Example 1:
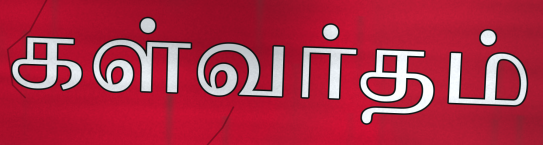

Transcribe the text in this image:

கள்வர்தம்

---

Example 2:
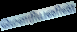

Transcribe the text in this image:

மௌரியனின்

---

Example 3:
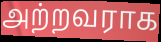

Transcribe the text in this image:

அற்றவராக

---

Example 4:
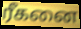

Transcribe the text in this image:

ரீகனை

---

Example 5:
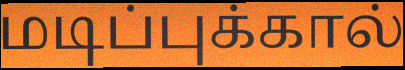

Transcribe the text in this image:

மடிப்புக்கால்